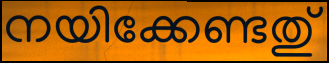
നയിക്കേണ്ടതു്